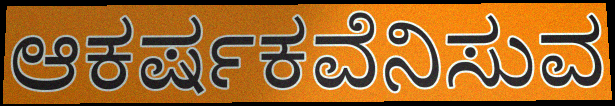
ಆಕರ್ಷಕವೆನಿಸುವ